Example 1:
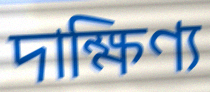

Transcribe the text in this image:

দাক্ষিণ্য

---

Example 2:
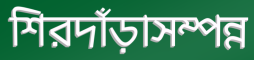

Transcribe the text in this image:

শিরদাঁড়াসম্পন্ন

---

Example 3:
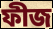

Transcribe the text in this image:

ফীজ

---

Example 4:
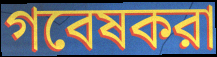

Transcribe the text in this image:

গবেষকরা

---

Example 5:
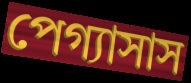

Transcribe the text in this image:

পেগ্যাসাস